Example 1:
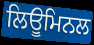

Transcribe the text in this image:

ਲਿਊਮਿਨਲ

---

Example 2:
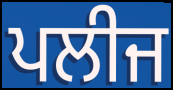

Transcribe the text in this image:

ਪਲੀਜ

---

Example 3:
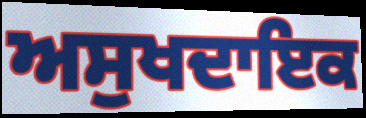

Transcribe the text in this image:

ਅਸੁਖਦਾਇਕ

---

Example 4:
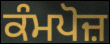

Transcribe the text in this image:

ਕੰਮਪੋਜ਼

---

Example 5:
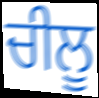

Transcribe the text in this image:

ਚੀਲੂ